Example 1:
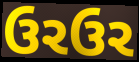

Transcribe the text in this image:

ઉરઉર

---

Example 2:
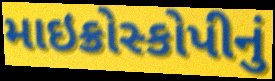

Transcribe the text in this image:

માઇક્રોસ્કોપીનું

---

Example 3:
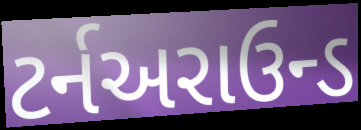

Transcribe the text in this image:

ટર્નઅરાઉન્ડ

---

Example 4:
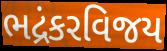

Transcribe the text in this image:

ભદ્રંકરવિજય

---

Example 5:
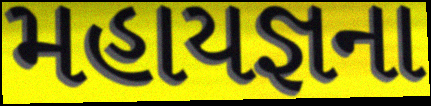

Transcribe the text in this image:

મહાયજ્ઞના